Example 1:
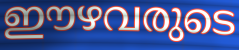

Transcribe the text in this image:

ഈഴവരുടെ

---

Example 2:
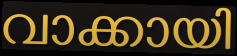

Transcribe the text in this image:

വാക്കായി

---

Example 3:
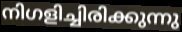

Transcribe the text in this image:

നിഗളിച്ചിരിക്കുന്നു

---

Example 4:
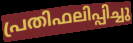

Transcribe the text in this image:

പ്രതിഫലിപ്പിച്ചു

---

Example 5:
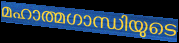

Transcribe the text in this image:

മഹാത്മഗാന്ധിയുടെ